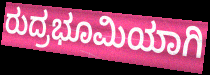
ರುದ್ರಭೂಮಿಯಾಗಿ